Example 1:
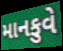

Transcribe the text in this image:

માનકુવે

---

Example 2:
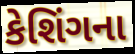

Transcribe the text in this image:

કેશિંગના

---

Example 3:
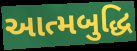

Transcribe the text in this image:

આત્મબુદ્ધિ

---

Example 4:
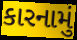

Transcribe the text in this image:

કારનામું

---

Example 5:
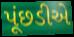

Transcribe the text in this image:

પૂંછડીએ